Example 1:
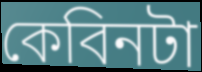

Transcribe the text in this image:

কেবিনটা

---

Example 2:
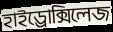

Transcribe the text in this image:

হাইড্রোক্সিলেজ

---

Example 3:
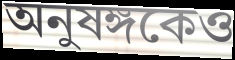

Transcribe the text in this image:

অনুষঙ্গকেও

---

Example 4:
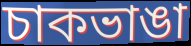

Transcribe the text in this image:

চাকভাঙা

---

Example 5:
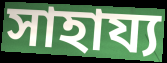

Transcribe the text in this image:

সাহায্য